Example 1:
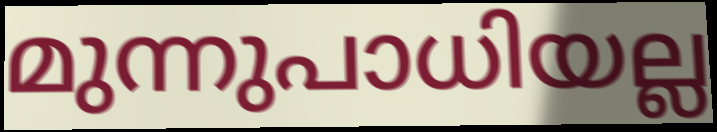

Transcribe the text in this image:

മുന്നുപാധിയല്ല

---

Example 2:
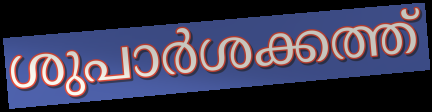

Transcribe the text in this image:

ശുപാർശക്കത്ത്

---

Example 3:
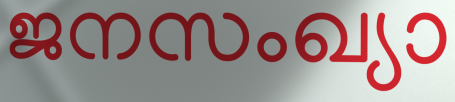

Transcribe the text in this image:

ജനസംഖ്യാ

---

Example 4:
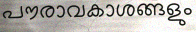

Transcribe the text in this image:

പൗരാവകാശങ്ങളും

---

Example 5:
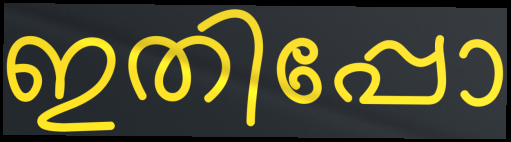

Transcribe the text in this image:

ഇതിപ്പോ